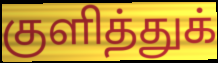
குளித்துக்